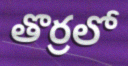
తొర్రలో